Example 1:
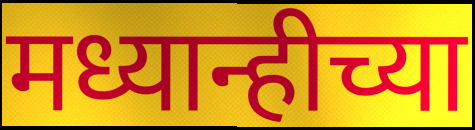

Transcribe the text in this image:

मध्यान्हीच्या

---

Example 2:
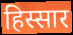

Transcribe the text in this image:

हिस्सार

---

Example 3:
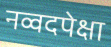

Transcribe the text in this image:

नव्वदपेक्षा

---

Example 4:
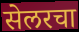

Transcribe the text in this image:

सेलरचा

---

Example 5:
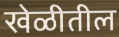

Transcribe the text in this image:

खेळीतील